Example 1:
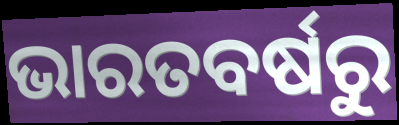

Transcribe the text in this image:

ଭାରତବର୍ଷରୁ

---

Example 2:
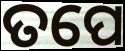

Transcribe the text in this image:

ତପେ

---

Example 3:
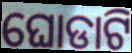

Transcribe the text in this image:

ଘୋଡାଟି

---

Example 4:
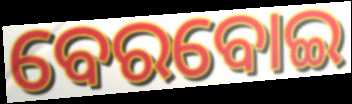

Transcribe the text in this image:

ବେରବୋଇ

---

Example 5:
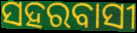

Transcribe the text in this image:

ସହରବାସୀ